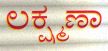
ಲಕ್ಷ್ಮಣಾ